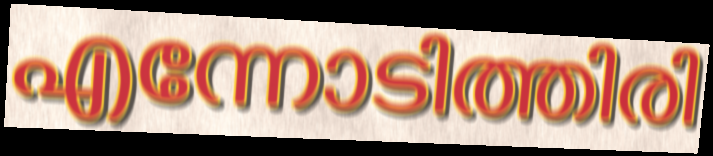
എന്നോടിത്തിരി